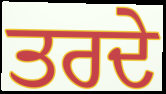
ਤਰਦੇ